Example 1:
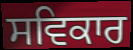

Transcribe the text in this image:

ਸਵਿਕਾਰ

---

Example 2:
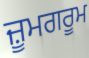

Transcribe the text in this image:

ਜ਼ੂਮਗਰੂਮ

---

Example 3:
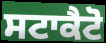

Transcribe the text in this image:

ਸਟਾਕੈਟੋ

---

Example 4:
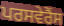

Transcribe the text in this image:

ਪਰਸਵੇਰੈਂਸ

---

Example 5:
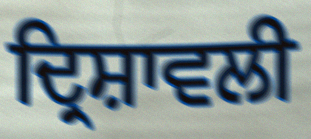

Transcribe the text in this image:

ਦ੍ਰਿਸ਼ਾਵਲੀ